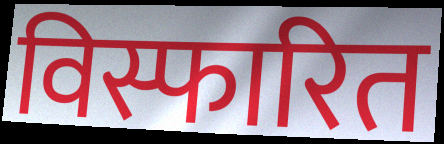
विस्फारित